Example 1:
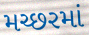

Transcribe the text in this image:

મચ્છરમાં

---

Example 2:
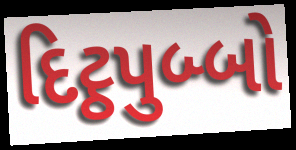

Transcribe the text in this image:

દિટ્ઠપુબ્બો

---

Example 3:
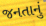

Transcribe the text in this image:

જનતાનું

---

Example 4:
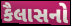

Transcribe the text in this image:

કૈલાસનો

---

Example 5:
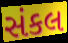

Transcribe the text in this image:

સંકલ